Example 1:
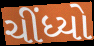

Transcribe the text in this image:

ચીંધ્યો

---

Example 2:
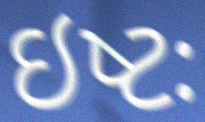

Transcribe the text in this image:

ઇષ્ટઃ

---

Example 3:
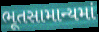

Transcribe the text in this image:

ભૂતસામાન્યમાં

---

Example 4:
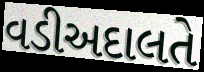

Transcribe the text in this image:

વડીઅદાલતે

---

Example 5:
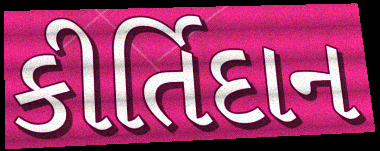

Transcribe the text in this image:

કીર્તિદાન